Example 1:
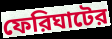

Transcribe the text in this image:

ফেরিঘাটের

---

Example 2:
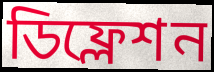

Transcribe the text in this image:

ডিফ্লেশন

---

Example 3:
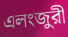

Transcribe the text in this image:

এলংজুরী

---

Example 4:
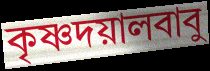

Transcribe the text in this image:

কৃষ্ণদয়ালবাবু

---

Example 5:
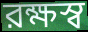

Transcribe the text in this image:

রক্ষস্ব